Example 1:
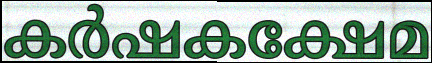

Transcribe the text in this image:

കർഷകക്ഷേമ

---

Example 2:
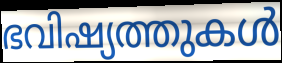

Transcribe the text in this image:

ഭവിഷ്യത്തുകൾ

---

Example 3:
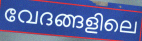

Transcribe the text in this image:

വേദങ്ങളിലെ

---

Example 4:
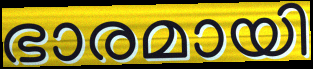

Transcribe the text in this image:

ഭാരമായി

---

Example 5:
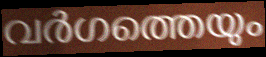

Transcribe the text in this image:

വർഗത്തെയും